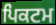
ਪਿਕਟਮ